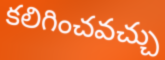
కలిగించవచ్చు